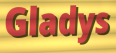
Gladys